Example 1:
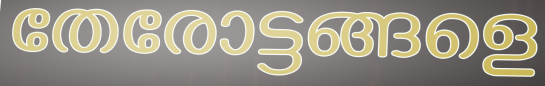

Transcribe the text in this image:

തേരോട്ടങ്ങളെ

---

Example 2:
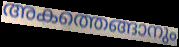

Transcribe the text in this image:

അകത്തെങ്ങാനും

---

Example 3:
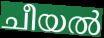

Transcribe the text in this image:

ചീയൽ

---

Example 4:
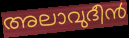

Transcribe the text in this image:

അലാവുദീൻ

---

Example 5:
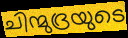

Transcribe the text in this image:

ചിന്മുദ്രയുടെ